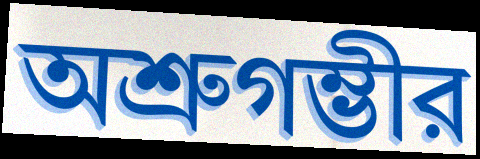
অশ্রুগম্ভীর